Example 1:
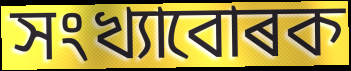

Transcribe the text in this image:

সংখ্যাবোৰক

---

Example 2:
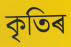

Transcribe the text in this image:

কৃতিৰ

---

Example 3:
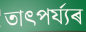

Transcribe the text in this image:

তাৎপৰ্য্যৰ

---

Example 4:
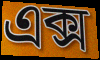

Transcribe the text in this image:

এক্স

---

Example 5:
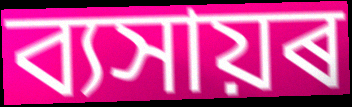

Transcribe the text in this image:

ব্যসায়ৰ